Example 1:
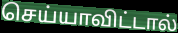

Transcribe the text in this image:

செய்யாவிட்டால்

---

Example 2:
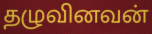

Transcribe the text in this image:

தழுவினவன்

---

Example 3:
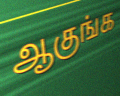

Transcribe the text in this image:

ஆகுங்க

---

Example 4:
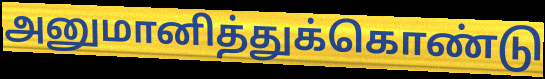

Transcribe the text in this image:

அனுமானித்துக்கொண்டு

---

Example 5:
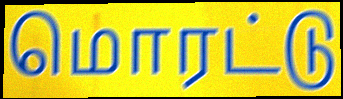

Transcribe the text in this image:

மொரட்டு